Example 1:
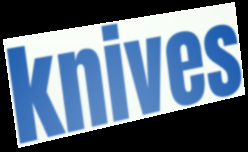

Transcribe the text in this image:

knives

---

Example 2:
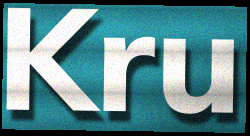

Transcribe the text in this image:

Kru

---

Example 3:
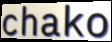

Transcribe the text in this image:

chako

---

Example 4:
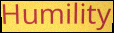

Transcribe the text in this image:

Humility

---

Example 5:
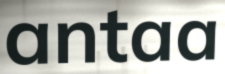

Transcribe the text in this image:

antaa